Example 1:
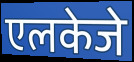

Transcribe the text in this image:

एलकेजे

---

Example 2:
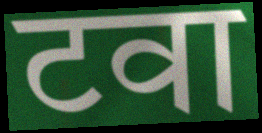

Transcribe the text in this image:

टवा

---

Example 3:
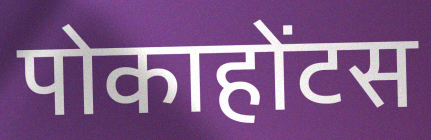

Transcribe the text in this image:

पोकाहोंटस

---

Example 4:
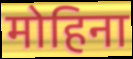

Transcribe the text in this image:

मोहिना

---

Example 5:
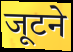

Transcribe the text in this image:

जूटने